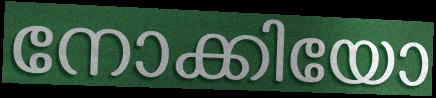
നോക്കിയോ